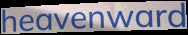
heavenward